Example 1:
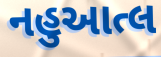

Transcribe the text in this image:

નહુઆત્લ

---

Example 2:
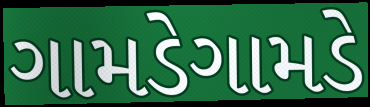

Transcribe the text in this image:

ગામડેગામડે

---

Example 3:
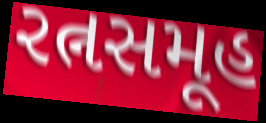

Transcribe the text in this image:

રત્નસમૂહ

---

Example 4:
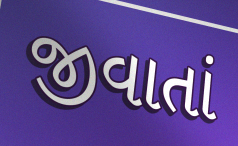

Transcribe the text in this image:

જીવાતાં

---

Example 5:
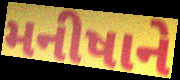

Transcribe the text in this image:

મનીષાને